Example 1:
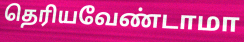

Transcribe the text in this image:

தெரியவேண்டாமா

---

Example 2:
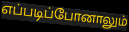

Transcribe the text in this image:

எப்படிப்போனாலும்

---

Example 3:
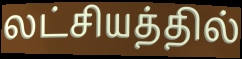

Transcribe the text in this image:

லட்சியத்தில்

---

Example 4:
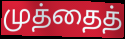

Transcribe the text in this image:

முத்தைத்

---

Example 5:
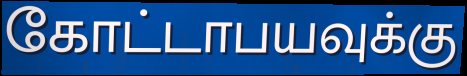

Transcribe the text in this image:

கோட்டாபயவுக்கு